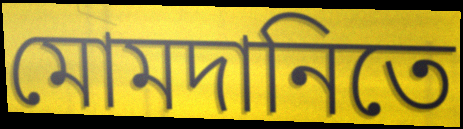
মোমদানিতে